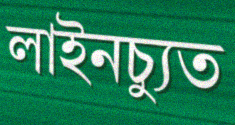
লাইনচ্যুত